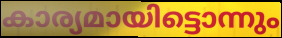
കാര്യമായിട്ടൊന്നും